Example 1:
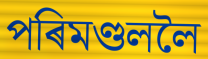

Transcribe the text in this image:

পৰিমণ্ডললৈ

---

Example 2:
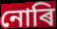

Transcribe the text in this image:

নোৰি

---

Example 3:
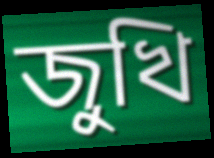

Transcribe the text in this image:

জুখি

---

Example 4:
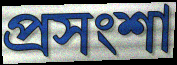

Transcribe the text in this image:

প্ৰসংশা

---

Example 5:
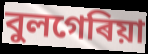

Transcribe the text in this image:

বুলগেৰিয়া